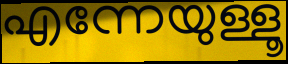
എന്നേയുള്ളൂ